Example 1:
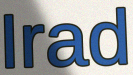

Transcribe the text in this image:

Irad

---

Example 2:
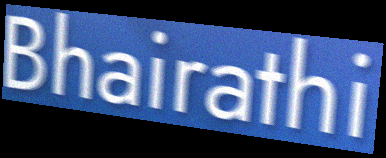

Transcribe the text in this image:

Bhairathi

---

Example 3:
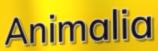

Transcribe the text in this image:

Animalia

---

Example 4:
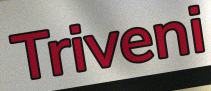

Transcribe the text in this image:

Triveni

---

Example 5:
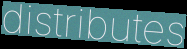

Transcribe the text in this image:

distributes